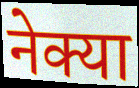
नेक्या